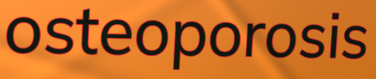
osteoporosis